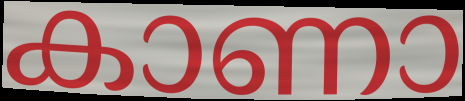
കാണാ